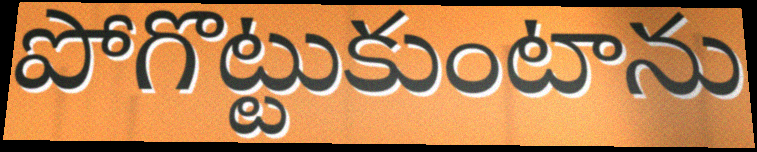
పోగొట్టుకుంటాను